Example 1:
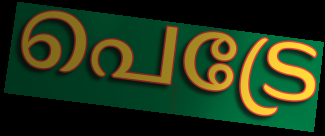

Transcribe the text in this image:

പെട്രേ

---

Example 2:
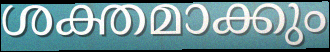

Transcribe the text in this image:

ശക്തമാക്കും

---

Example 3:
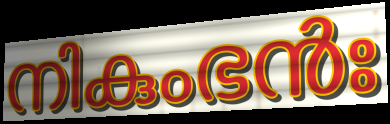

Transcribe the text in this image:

നികുംഭൻഃ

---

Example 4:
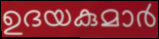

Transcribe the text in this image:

ഉദയകുമാർ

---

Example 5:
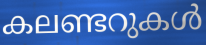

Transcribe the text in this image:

കലണ്ടറുകൾ